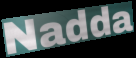
Nadda